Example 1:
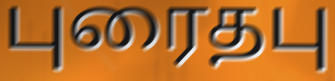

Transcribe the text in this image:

புரைதபு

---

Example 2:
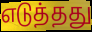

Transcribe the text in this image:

எடுத்தது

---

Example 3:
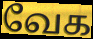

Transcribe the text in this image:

வேக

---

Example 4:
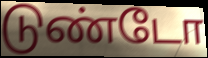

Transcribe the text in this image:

டுண்டோ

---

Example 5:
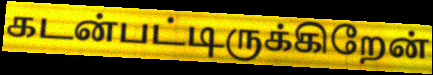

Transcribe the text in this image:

கடன்பட்டிருக்கிறேன்